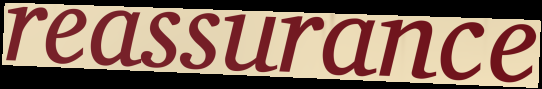
reassurance